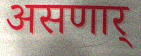
असणार्